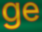
ge